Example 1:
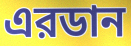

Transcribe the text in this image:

এরডান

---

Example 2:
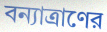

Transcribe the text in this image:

বন্যাত্রাণের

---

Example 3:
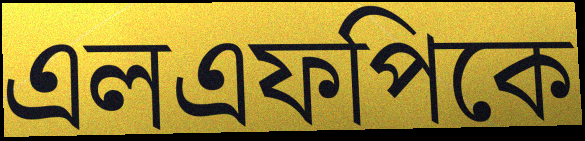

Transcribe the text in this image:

এলএফপিকে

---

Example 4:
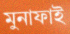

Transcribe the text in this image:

মুনাফাই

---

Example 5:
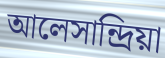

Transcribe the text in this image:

আলেসান্দ্রিয়া